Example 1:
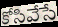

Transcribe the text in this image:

కోసివేసే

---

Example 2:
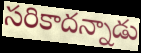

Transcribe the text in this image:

సరికాదన్నాడు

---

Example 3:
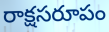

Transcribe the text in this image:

రాక్షసరూపం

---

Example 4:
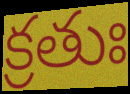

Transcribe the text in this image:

క్రతుః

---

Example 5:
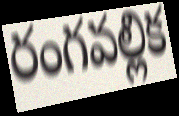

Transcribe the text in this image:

రంగవల్లిక